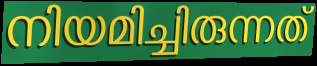
നിയമിച്ചിരുന്നത്